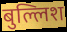
बुल्लिश